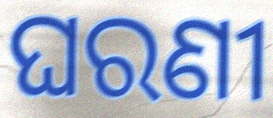
ଘରଣୀ